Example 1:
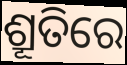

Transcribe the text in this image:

ଶ୍ରୂତିରେ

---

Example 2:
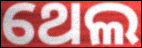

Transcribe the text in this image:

ଥେଲ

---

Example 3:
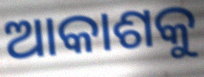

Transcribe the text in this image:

ଆକାଶକୁ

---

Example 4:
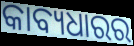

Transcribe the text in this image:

କାବ୍ୟଧାରର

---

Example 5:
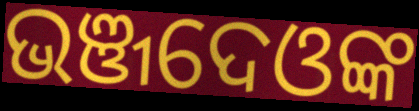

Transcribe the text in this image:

ଭଞ୍ଜଦେଓଙ୍କ